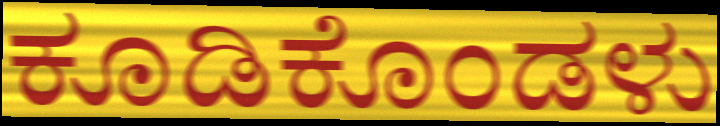
ಕೂಡಿಕೊಂಡಳು